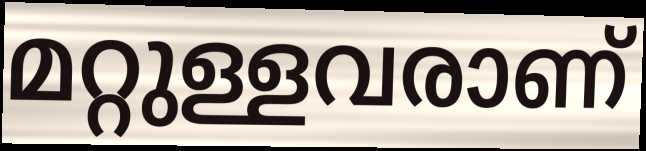
മറ്റുള്ളവരാണ്